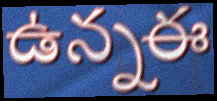
ఉన్నఈ